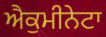
ਐਕੁਮੀਨੇਟਾ